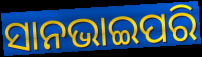
ସାନଭାଇପରି